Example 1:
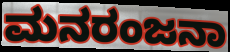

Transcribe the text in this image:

ಮನರಂಜನಾ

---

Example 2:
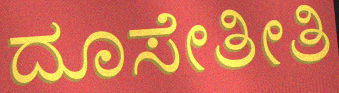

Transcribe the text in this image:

ದೂಸೇತೀತಿ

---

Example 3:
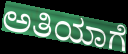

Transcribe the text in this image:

ಅತಿಯಾಗೆ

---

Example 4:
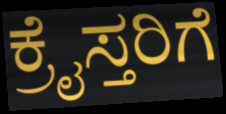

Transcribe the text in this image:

ಕ್ರೈಸ್ತರಿಗೆ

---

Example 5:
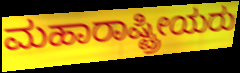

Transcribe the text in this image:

ಮಹಾರಾಷ್ಟ್ರೀಯರು